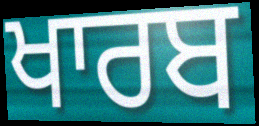
ਖਾਰਬ